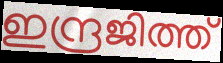
ഇന്ദ്രജിത്ത്